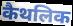
कैथलिक